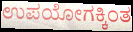
ಉಪಯೋಗಕ್ಕಿಂತ